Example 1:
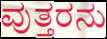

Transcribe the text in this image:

ವುತ್ತರನು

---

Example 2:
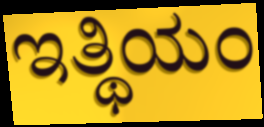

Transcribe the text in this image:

ಇತ್ಥಿಯಂ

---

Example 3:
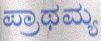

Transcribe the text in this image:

ಪ್ರಾಥಮ್ಯ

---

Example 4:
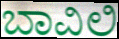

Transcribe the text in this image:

ಬಾವಿಲಿ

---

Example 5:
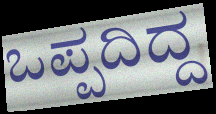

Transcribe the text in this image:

ಒಪ್ಪದಿದ್ದ